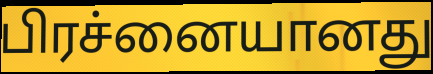
பிரச்னையானது